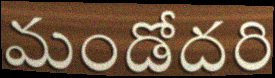
మండోదరి